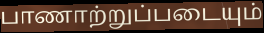
பாணாற்றுப்படையும்